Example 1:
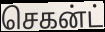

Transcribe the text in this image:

செகன்ட்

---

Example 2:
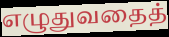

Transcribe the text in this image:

எழுதுவதைத்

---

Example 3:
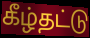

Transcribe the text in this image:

கீழ்தட்டு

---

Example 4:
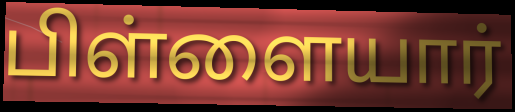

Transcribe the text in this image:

பிள்ளையார்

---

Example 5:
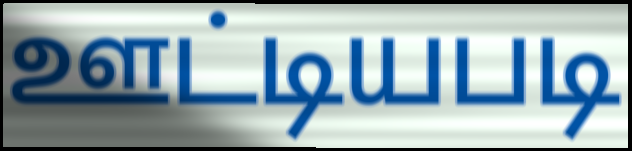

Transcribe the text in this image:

ஊட்டியபடி